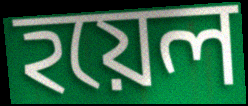
হয়েল